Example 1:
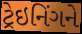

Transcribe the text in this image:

ટ્રેઇનિંગને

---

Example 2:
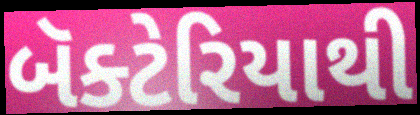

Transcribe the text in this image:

બૅક્ટેરિયાથી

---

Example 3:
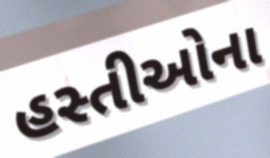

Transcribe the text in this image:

હસ્તીઓના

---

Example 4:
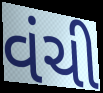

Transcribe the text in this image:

વંચી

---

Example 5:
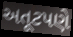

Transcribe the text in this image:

અતૂટપણે